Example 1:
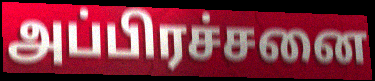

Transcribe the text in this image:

அப்பிரச்சனை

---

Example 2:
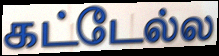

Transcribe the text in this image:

கட்டேல்ல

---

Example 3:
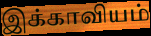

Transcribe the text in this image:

இக்காவியம்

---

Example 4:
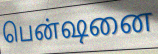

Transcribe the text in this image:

பென்ஷனை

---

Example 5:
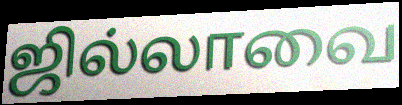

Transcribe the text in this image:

ஜில்லாவை